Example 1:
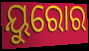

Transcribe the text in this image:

ୟୁରୋର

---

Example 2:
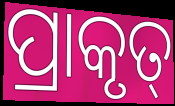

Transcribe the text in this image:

ପ୍ରାକୃତ୍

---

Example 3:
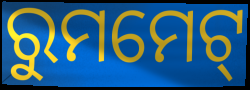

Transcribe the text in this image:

ରୁମମେଟ୍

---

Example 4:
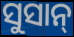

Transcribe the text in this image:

ସୁସାନ୍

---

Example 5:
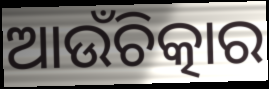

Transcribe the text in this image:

ଆଉଁଚିତ୍କାର